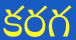
కరగ